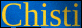
Chisti